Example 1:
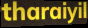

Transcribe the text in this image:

tharaiyil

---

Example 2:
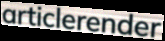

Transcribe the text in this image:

articlerender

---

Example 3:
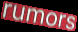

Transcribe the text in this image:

rumors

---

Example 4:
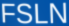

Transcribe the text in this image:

FSLN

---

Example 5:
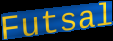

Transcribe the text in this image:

Futsal